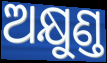
ଅକ୍ଷୁଣ୍ଡ